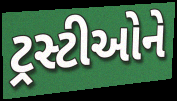
ટ્રસ્ટીઓને